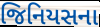
જિનિયસના